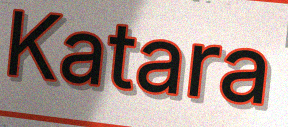
Katara